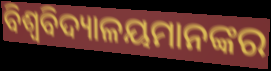
ବିଶ୍ଵବିଦ୍ୟାଳୟମାନଙ୍କର